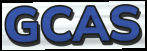
GCAS